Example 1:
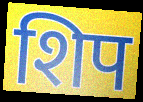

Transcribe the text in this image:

शिप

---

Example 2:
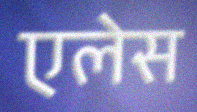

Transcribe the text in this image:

एलेस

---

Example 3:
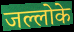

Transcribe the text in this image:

जल्लोके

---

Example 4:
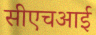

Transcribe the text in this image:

सीएचआई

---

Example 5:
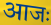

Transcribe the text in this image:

आजः